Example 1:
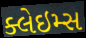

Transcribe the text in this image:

ક્લેઇમ્સ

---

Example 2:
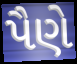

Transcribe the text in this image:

પૈણે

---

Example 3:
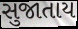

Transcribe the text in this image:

સુજાતાય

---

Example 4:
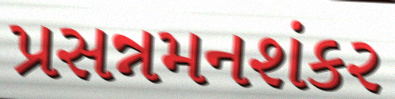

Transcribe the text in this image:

પ્રસન્નમનશંકર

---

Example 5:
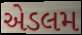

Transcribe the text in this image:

એડલમ